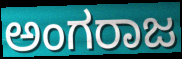
ಅಂಗರಾಜ